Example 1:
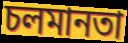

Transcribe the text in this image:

চলমানতা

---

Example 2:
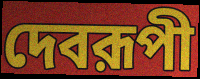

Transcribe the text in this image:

দেবরূপী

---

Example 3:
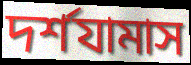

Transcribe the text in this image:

দর্শযামাস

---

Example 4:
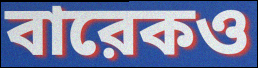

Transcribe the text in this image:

বারেকও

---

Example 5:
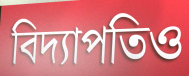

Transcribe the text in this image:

বিদ্যাপতিও